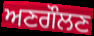
ਅਣਗੌਲਣ